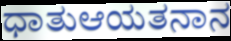
ಧಾತುಆಯತನಾನ